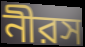
নীরস